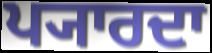
ਪ੍ਯਾਰਦਾ